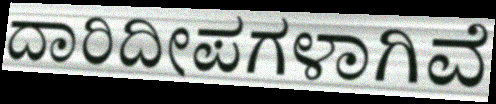
ದಾರಿದೀಪಗಳಾಗಿವೆ